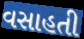
વસાહતી